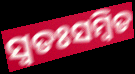
ସ୍ୱତଃସମ୍ବିତ